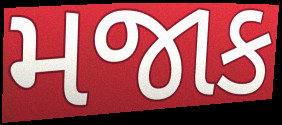
મજાક